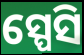
ସ୍ପେସି